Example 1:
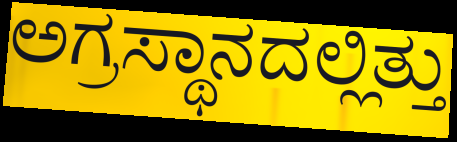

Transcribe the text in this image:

ಅಗ್ರಸ್ಥಾನದಲ್ಲಿತ್ತು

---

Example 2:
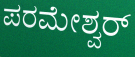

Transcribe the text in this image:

ಪರಮೇಶ್ವರ್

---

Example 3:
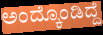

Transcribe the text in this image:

ಅಂದ್ಕೊಂಡಿದ್ದೆ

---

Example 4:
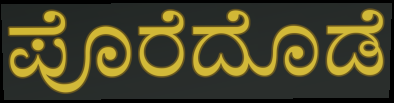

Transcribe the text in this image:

ಪೊರೆದೊಡೆ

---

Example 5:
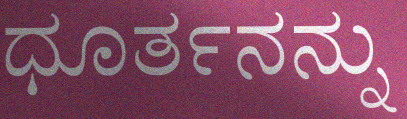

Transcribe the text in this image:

ಧೂರ್ತನನ್ನು